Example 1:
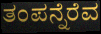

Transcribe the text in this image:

ತಂಪನ್ನೆರೆವ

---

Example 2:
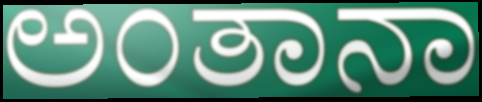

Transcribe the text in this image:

ಅಂತಾನಾ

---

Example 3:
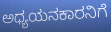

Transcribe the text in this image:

ಅಧ್ಯಯನಕಾರನಿಗೆ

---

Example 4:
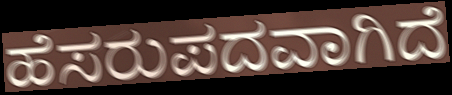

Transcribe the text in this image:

ಹೆಸರುಪದವಾಗಿದೆ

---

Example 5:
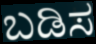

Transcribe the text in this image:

ಬಡಿಸ